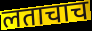
लताचाच